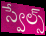
స్వేల్స్